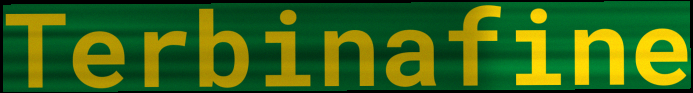
Terbinafine